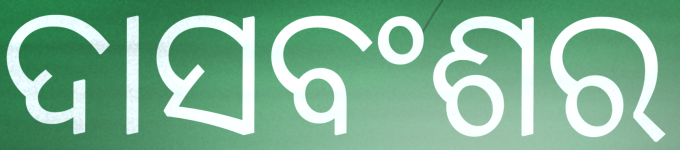
ଦାସବଂଶର